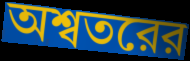
অশ্বতরের